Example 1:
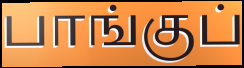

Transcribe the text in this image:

பாங்குப்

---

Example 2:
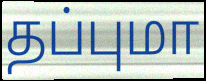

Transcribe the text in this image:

தப்புமா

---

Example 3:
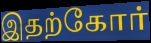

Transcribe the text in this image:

இதற்கோர்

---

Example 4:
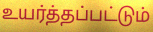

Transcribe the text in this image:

உயர்த்தப்பட்டும்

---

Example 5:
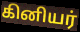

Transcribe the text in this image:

கினியர்